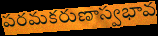
పరమకరుణాస్వభావ